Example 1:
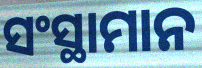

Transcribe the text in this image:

ସଂସ୍ଥାମାନ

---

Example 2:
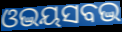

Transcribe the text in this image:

ଓଦ୍ଭୟସବଦ୍ଭ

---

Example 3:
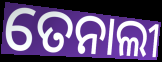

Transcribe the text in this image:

ତେନାଲୀ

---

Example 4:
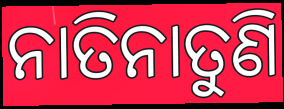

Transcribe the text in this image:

ନାତିନାତୁଣି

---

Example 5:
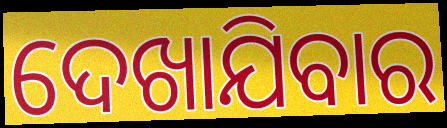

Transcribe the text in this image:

ଦେଖାଯିବାର